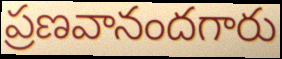
ప్రణవానందగారు